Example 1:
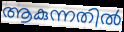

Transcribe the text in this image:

ആകുന്നതിൽ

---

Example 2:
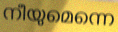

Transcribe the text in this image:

നീയുമെന്നെ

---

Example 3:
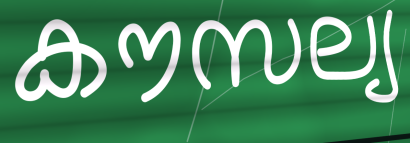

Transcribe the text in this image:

കൗസല്യ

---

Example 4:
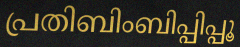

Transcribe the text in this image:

പ്രതിബിംബിപ്പിപ്പൂ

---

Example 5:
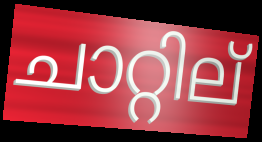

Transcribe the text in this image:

ചാറ്റില്